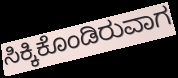
ಸಿಕ್ಕಿಕೊಂಡಿರುವಾಗ